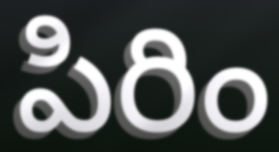
పిరిం